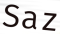
Saz